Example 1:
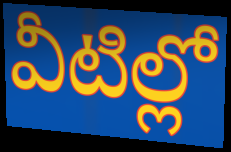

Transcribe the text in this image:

వీటిల్లో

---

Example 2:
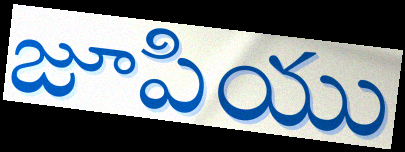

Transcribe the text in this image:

జూపియు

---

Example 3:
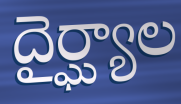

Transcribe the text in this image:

దైర్ఘ్యాల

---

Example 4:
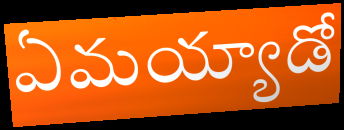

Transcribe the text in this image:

ఏమయ్యాడో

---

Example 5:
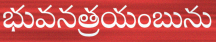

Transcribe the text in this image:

భువనత్రయంబును